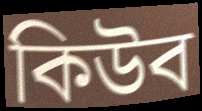
কিউব